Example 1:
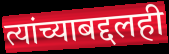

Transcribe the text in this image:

त्यांच्याबद्दलही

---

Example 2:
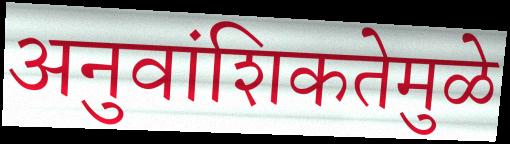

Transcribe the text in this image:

अनुवांशिकतेमुळे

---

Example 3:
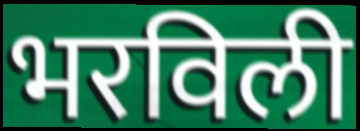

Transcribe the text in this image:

भरविली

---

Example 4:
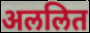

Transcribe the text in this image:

अललित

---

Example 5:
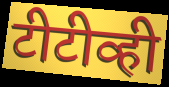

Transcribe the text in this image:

टीटीव्ही